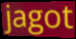
jagot